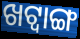
ଖଟ୍ଵାଙ୍ଗ